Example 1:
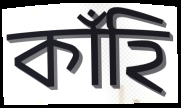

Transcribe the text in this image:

কাঁহি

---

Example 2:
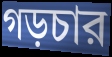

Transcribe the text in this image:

গড়চার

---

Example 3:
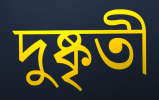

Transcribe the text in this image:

দুষ্কৃতী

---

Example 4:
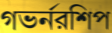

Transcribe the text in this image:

গভর্নরশিপ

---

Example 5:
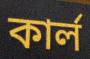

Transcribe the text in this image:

কার্ল